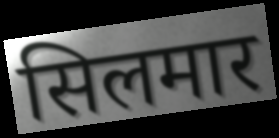
सिलमार